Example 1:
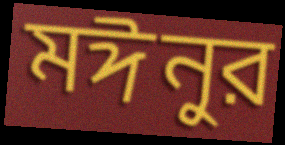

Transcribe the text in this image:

মঈনুর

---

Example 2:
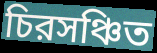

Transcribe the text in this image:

চিরসঞ্চিত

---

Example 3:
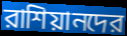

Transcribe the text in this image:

রাশিয়ানদের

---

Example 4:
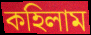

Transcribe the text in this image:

কহিলাম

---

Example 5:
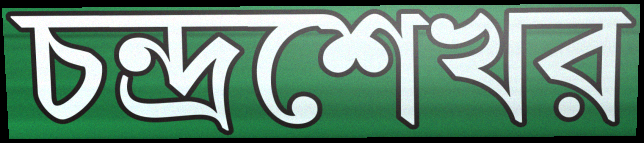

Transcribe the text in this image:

চন্দ্রশেখর